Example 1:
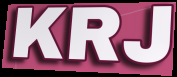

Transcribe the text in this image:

KRJ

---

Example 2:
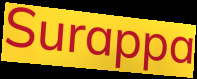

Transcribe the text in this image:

Surappa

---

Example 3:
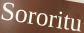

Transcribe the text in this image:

Sororitu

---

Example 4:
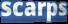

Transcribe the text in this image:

scarps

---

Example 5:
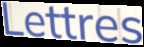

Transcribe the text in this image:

Lettres